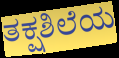
ತಕ್ಷಶಿಲೆಯ